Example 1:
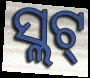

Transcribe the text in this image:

ସ୍ଲଟ୍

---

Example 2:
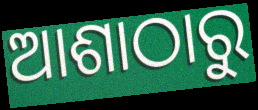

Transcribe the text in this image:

ଆଶାଠାରୁ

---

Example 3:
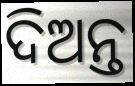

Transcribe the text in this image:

ଦିଅନ୍ତ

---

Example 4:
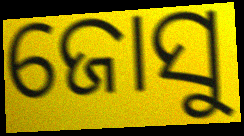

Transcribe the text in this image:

ଜୋସୁ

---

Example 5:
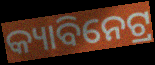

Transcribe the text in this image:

କ୍ୟାବିନେଟ୍ର